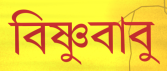
বিষ্ণুবাবু